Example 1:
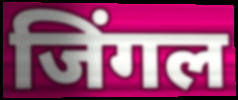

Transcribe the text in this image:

जिंगल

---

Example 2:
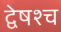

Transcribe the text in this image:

द्वेषश्च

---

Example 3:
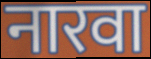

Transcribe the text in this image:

नारवा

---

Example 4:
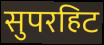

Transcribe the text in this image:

सुपरहिट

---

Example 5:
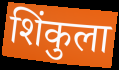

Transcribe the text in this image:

शिंकुला